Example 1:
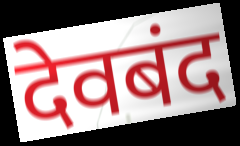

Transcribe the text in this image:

देवबंद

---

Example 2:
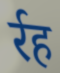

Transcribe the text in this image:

र्रह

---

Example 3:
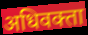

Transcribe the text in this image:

अधिवक्ता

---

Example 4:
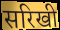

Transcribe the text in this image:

सरिखी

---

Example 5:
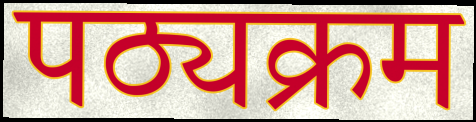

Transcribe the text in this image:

पठ्यक्रम